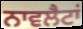
ਨਾਵਲੈਟਾਂ